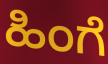
ಹಿಂಗೆ